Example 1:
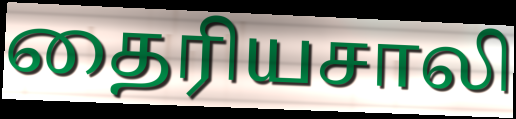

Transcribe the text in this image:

தைரியசாலி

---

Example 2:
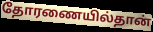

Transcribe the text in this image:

தோரணையில்தான்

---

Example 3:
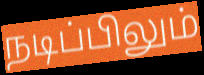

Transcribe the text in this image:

நடிப்பிலும்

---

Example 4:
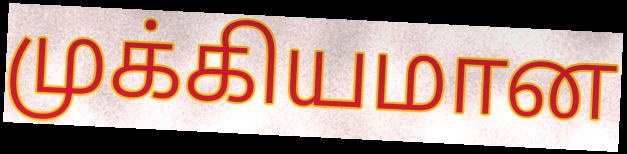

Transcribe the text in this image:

முக்கியமான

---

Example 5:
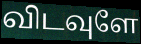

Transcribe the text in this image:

விடவுளே